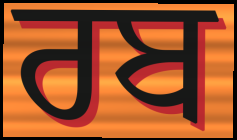
ਰਬ